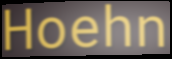
Hoehn